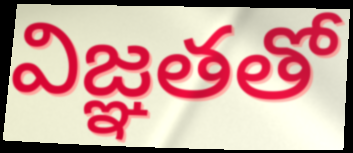
విజ్ఞతతో